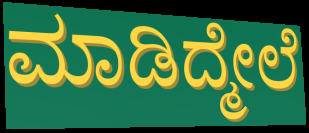
ಮಾಡಿದ್ಮೇಲೆ